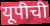
यूपीची